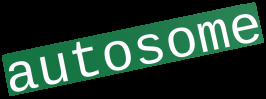
autosome